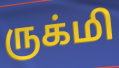
ருக்மி